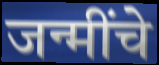
जन्मींचे